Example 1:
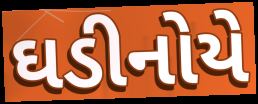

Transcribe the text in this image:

ઘડીનોયે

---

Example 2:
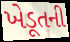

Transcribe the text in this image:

ખેડૂતની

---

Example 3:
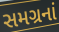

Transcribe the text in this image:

સમગ્રનાં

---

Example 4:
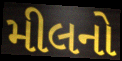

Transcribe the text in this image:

મીલનો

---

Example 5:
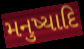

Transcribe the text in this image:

મનુષ્યાદિ